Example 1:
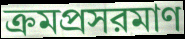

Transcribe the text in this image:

ক্রমপ্রসরমাণ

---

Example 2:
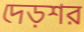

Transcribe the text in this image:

দেড়শর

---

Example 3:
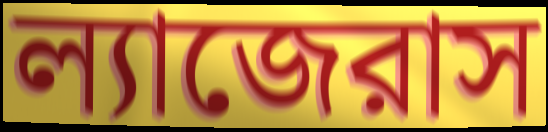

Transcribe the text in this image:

ল্যাজেরাস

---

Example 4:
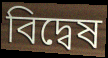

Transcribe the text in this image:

বিদ্বেষ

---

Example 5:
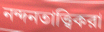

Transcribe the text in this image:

নন্দনতাত্ত্বিকরা